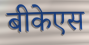
बीकेएस